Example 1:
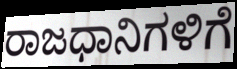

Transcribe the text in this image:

ರಾಜಧಾನಿಗಳಿಗೆ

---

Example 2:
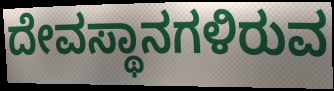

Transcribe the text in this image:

ದೇವಸ್ಥಾನಗಳಿರುವ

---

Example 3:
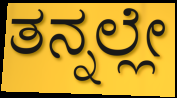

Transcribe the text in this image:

ತನ್ನಲ್ಲೇ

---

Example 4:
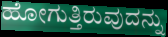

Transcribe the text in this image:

ಹೋಗುತ್ತಿರುವುದನ್ನು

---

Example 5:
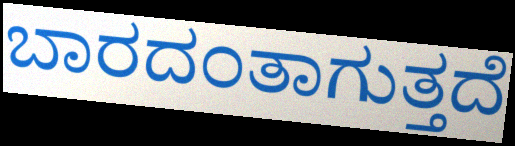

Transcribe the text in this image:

ಬಾರದಂತಾಗುತ್ತದೆ